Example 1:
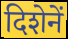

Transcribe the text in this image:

दिशेनें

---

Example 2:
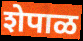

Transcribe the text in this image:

शेपाळ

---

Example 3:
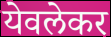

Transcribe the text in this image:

येवलेकर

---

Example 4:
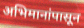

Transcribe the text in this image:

अभिमानांपासून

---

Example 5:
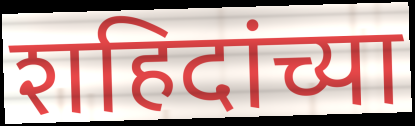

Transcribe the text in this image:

शहिदांच्या